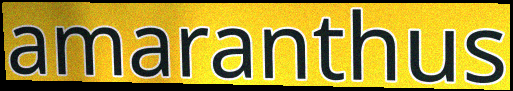
amaranthus